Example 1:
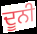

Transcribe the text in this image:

ਦੂਨੀ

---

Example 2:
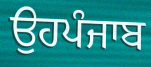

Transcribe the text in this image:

ਉਹਪੰਜਾਬ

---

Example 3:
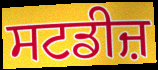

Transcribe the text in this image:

ਸਟਡੀਜ਼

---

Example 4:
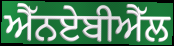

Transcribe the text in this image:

ਐੱਨਏਬੀਐੱਲ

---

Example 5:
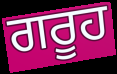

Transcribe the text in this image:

ਗਰੂਹ